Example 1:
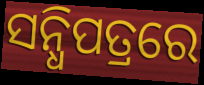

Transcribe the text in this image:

ସନ୍ଧିପତ୍ରରେ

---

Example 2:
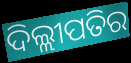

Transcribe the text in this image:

ଦିଲ୍ଲୀପତିର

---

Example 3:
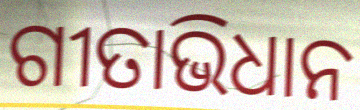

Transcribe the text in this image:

ଗୀତାଭିଧାନ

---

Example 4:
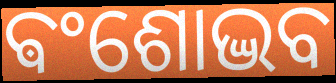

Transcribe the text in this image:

ଵଂଶୋଦ୍ଭବ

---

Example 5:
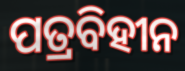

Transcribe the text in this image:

ପତ୍ରବିହୀନ